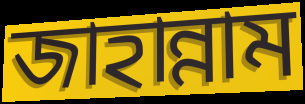
জাহান্নাম